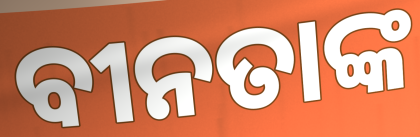
ବୀନତାଙ୍କ